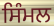
ਸਿੰਮਲ